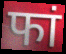
फां